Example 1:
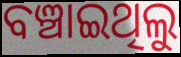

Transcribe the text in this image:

ବଞ୍ଚାଇଥିଲୁ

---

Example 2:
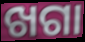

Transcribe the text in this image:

ଖଗା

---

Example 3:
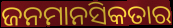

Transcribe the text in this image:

ଜନମାନସିକତାର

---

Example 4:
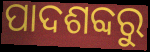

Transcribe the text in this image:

ପାଦଶବ୍ଦରୁ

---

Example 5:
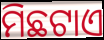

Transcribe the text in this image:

ମିଛଟାଏ